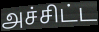
அச்சிட்ட